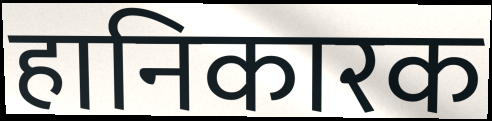
हानिकारक